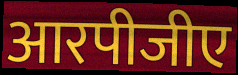
आरपीजीए